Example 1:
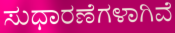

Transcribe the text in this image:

ಸುಧಾರಣೆಗಳಾಗಿವೆ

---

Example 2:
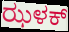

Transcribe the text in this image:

ಝಳಕ್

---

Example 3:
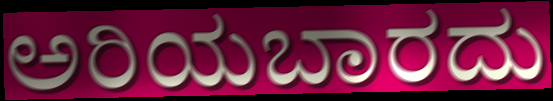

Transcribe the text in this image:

ಅರಿಯಬಾರದು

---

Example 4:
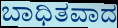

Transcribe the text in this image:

ಬಾಧಿತವಾದ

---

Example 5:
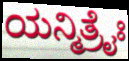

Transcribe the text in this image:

ಯನ್ಮಿತ್ರೈಃ